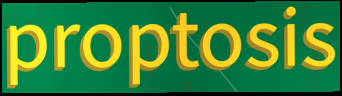
proptosis